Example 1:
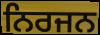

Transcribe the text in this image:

ਨਿਰਜਨ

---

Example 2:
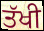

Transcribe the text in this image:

ਤੱਖੀ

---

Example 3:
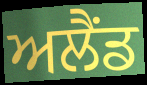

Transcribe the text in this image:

ਅਲੈਂਡ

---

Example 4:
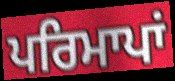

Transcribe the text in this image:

ਪਰਿਮਾਪਾਂ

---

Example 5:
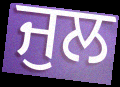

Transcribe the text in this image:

ਜੁਲ